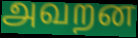
அவறன